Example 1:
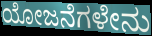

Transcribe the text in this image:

ಯೋಜನೆಗಳೇನು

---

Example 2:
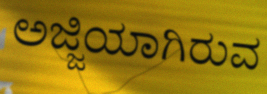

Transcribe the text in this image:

ಅಜ್ಜಿಯಾಗಿರುವ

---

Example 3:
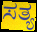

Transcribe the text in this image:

ಸತ್ಯ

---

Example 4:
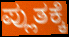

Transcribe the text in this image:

ಪ್ಲುತಕ್ಕೆ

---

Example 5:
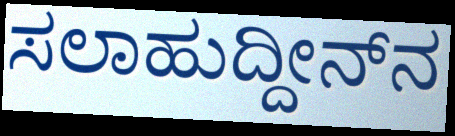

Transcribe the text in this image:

ಸಲಾಹುದ್ದೀನ್‍ನ